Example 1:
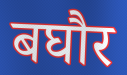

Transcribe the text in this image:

बघौर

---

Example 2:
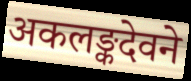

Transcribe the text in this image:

अकलङ्कदेवने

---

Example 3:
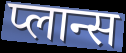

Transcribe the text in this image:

प्लान्स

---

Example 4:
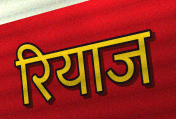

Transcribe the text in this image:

रियाज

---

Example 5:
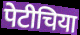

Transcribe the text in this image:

पेटीचिया